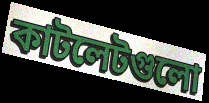
কাটলেটগুলো